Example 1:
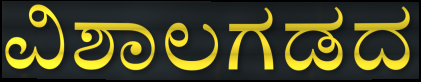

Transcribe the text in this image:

ವಿಶಾಲಗಡದ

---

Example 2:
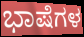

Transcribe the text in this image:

ಭಾಷೆಗಳ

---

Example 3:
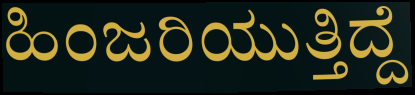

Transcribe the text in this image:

ಹಿಂಜರಿಯುತ್ತಿದ್ದೆ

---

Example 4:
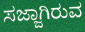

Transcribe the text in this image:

ಸಜ್ಜಾಗಿರುವ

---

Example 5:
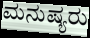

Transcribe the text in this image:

ಮನುಷ್ಯರು